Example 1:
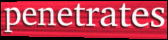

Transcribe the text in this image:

penetrates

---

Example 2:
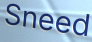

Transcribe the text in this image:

Sneed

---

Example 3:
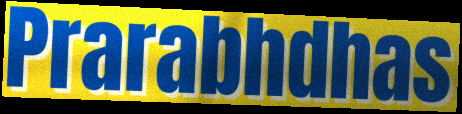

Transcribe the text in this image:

Prarabhdhas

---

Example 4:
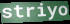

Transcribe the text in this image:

striyo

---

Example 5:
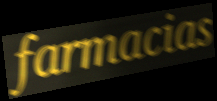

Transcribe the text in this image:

farmacias